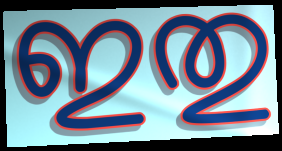
ഇതു